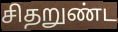
சிதறுண்ட